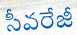
సీవరేజీ